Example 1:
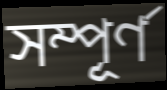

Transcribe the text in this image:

সম্পূৰ্ণ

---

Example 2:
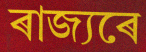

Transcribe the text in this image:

ৰাজ্যৰে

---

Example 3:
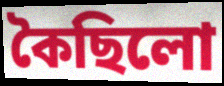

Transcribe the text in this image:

কৈছিলো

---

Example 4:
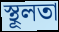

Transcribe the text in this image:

স্থূলতা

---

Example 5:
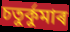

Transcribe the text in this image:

চতুৰ্কুমাৰ